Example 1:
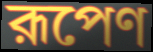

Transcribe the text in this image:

রূপেণ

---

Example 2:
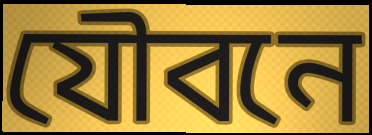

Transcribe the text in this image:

যৌবনে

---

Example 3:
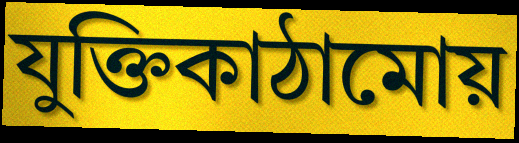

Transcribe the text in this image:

যুক্তিকাঠামোয়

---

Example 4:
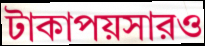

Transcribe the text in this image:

টাকাপয়সারও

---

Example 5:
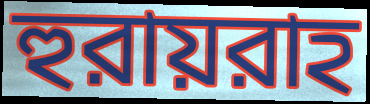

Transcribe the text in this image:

হুরায়রাহ